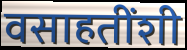
वसाहतींशी